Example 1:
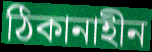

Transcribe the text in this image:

ঠিকানাহীন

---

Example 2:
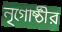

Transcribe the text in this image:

নৃগোষ্ঠীর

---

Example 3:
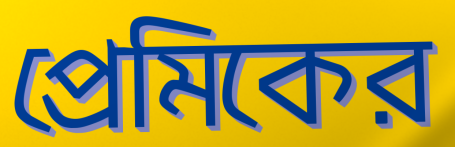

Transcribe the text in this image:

প্রেমিকের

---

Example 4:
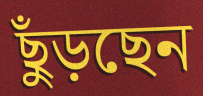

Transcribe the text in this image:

ছুঁড়ছেন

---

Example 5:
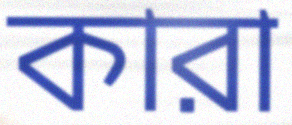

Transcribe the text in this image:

কারা